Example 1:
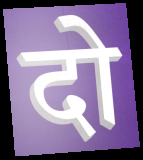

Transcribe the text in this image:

दो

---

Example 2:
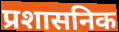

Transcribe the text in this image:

प्रशासनिक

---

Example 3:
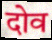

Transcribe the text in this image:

दोव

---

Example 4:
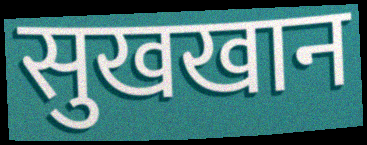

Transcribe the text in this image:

सुखखान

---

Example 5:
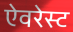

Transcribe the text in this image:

ऐवरेस्ट